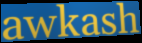
awkash